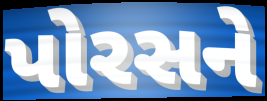
પોરસને